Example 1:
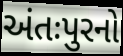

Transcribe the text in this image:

અંતઃપુરનો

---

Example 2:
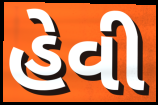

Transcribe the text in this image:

હેવી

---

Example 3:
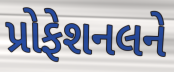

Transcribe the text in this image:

પ્રોફેશનલને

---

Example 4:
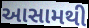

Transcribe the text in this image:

આસામથી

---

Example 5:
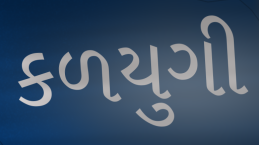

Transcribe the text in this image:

કળયુગી